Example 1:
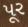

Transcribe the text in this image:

પૂર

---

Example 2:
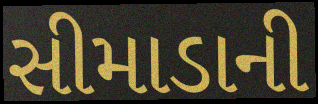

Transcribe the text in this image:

સીમાડાની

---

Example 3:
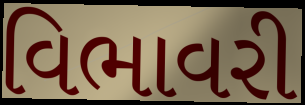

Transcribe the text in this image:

વિભાવરી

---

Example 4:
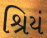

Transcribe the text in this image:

શ્રિયં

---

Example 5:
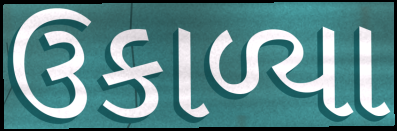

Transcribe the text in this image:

ઉકાળ્યા